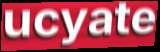
ucyate